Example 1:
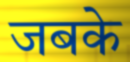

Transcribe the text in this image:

जबके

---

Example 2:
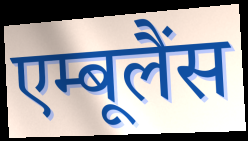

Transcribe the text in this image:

एम्बूलैंस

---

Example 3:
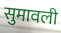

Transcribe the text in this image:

सुमावली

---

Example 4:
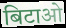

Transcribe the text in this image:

बिटाओ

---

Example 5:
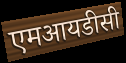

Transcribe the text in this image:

एमआयडीसी